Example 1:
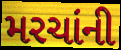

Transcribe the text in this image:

મરચાંની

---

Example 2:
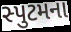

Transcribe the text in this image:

સ્પુટમના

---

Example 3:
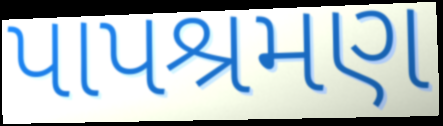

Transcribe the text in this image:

પાપશ્રમણ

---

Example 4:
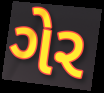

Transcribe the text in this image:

ગેર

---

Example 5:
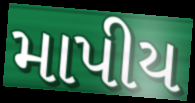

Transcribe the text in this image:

માપીય